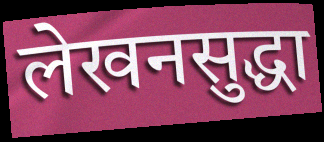
लेखनसुद्धा